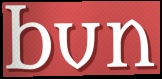
bun